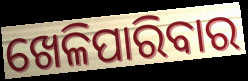
ଖେଳିପାରିବାର